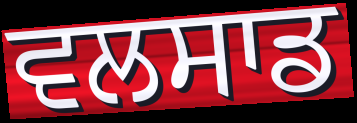
ਵਲਸਾਡ